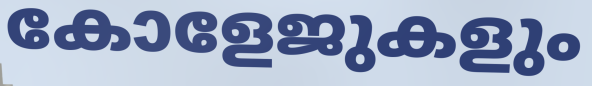
കോളേജുകളും